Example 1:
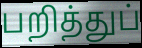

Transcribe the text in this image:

பறித்துப்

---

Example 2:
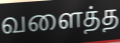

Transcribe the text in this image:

வளைத்த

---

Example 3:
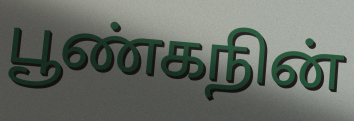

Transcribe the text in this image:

பூண்கநின்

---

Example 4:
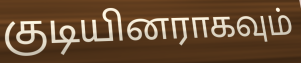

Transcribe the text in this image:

குடியினராகவும்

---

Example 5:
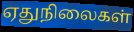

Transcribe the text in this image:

ஏதுநிலைகள்